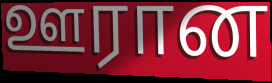
ஊரான